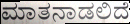
ಮಾತನಾಡಲಿದೆ